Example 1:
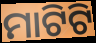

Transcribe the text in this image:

ମାଟିଟି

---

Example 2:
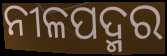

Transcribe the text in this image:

ନୀଳପଦ୍ମର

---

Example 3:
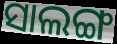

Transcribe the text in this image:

ସାଲଙ୍ଗ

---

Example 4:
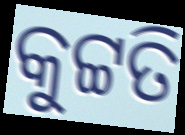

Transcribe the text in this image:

କୁଟ୍ଟତି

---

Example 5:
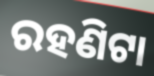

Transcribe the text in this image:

ରହଣିଟା